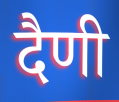
दैणी